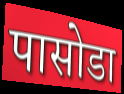
पासोडा